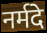
नर्मदे